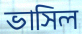
ভাসিল